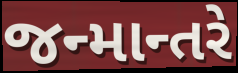
જન્માન્તરે